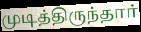
முடித்திருந்தார்